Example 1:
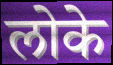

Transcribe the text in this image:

लोके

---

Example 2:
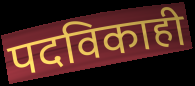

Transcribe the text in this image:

पदविकाही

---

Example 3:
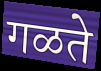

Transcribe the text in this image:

गळते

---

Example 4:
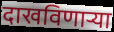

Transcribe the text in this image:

दाखविणाऱ्या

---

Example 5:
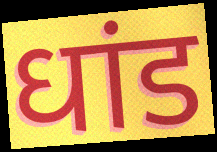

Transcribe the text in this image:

धांड